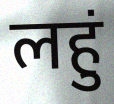
लहुं